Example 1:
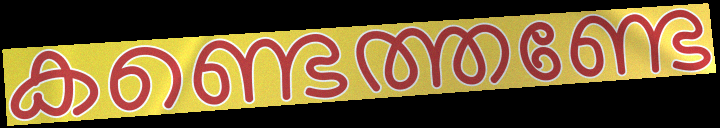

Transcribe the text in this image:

കണ്ടെത്തണ്ടേ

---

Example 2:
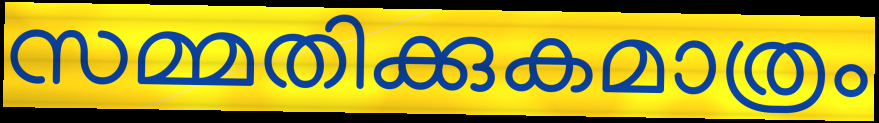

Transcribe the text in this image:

സമ്മതിക്കുകമാത്രം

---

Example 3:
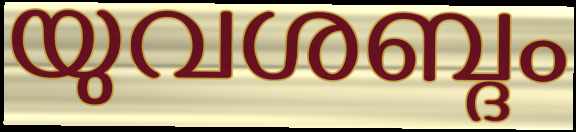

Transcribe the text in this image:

യുവശബ്ദം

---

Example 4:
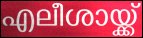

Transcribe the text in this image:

എലീശായ്ക്ക്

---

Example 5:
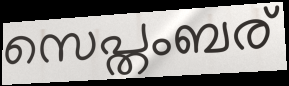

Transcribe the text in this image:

സെപ്തംബര്